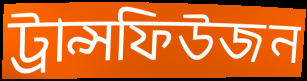
ট্ৰান্সফিউজন